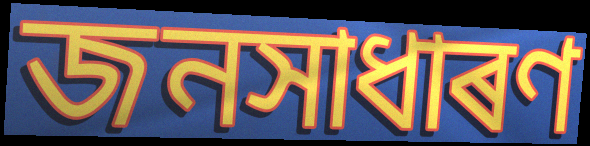
জনসাধাৰণ